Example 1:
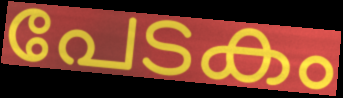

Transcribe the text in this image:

പേടകം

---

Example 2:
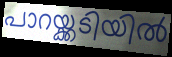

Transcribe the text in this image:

പാറയ്ക്കടിയിൽ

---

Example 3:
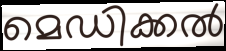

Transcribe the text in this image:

മെഡിക്കൽ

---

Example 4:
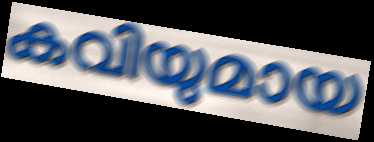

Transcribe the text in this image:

കവിയുമായ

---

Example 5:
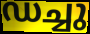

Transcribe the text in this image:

ഡച്ചു